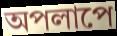
অপলাপে